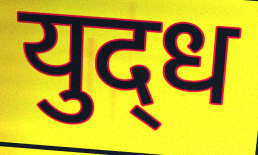
युद्‍ध